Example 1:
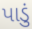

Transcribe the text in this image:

પાડું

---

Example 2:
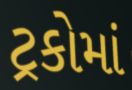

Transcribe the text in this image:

ટ્રકોમાં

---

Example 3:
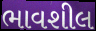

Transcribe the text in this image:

ભાવશીલ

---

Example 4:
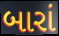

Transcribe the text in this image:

બારાં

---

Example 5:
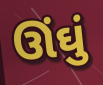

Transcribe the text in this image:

ઊંઘું